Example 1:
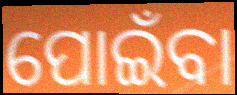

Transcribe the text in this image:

ପୋଇଁବା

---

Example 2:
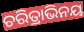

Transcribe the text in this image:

ଚରିତ୍ରାଭିନୟ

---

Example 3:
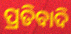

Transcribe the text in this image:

ପ୍ରତିବାଦି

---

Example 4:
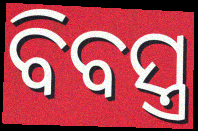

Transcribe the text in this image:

ବିବସ୍ତ୍ର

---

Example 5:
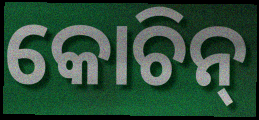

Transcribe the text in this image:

କୋଚିନ୍